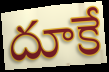
దూకే